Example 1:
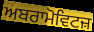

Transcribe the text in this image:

ਅਬਰਾਮੋਵਿਟਜ਼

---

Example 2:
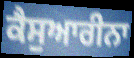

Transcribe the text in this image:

ਕੈਸੁਆਰੀਨਾ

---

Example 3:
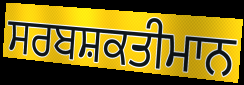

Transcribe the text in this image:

ਸਰਬਸ਼ਕਤੀਮਾਨ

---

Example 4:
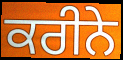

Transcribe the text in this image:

ਕਰੀਨੇ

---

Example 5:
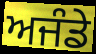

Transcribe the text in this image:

ਅਜੰਡੇ